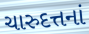
ચારુદત્તનાં